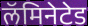
लॅमिनेटेड